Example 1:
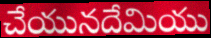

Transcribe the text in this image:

చేయునదేమియు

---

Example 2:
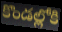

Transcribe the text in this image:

కొండల్లోకి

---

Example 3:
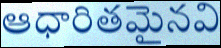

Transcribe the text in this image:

ఆధారితమైనవి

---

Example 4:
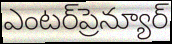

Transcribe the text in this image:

ఎంటర్‌ప్రెన్యూర్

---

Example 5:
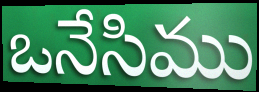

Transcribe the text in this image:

ఒనేసిము